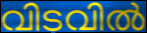
വിടവിൽ